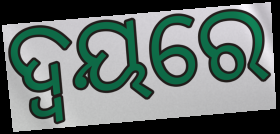
ଦ୍ୱୟରେ